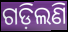
ଗଡ଼ିଲଣି